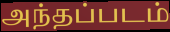
அந்தப்படம்